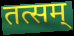
तत्सम्